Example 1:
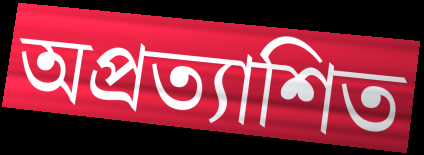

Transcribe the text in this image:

অপ্ৰত্যাশিত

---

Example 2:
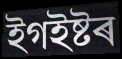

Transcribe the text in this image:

ইগইষ্টৰ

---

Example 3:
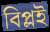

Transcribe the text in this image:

বিপ্লই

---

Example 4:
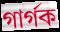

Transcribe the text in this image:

গাৰ্গক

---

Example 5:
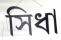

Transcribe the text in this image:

সিধা